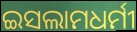
ଇସଲାମଧର୍ମୀ